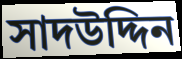
সাদউদ্দিন